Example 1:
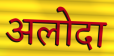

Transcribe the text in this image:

अलोदा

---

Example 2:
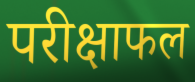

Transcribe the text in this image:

परीक्षाफल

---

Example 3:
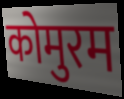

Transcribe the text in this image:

कोमुरम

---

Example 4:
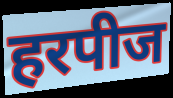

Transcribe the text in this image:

हरपीज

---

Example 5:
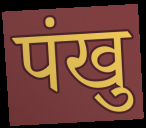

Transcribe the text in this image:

पंखु